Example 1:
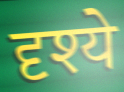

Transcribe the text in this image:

दृश्‍ये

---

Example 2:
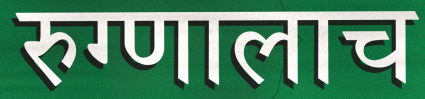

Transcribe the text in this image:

रुग्णालाच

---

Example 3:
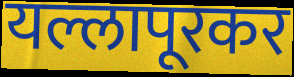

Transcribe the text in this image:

यल्लापूरकर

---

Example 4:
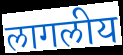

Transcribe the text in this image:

लागलीय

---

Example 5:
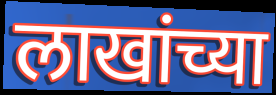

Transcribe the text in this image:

लाखांच्या